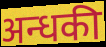
अन्धकी